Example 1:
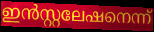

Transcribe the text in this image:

ഇൻസ്റ്റലേഷനെന്ന്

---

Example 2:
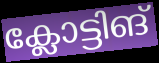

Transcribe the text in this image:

ക്ലോട്ടിങ്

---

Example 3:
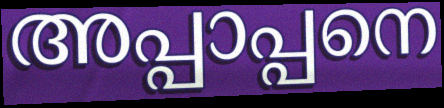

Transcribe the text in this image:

അപ്പാപ്പനെ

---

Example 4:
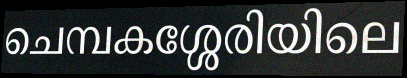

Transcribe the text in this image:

ചെമ്പകശ്ശേരിയിലെ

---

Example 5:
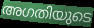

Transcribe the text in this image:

അഗതിയുടെ